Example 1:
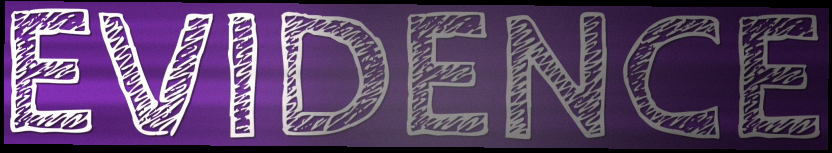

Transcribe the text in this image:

EVIDENCE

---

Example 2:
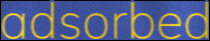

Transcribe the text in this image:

adsorbed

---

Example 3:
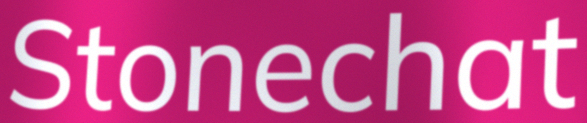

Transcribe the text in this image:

Stonechat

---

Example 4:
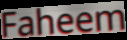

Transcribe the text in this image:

Faheem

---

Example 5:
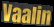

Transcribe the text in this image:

Vaalin